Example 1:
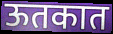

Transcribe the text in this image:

ऊतकात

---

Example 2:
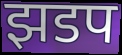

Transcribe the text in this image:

झडप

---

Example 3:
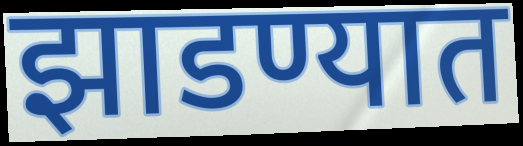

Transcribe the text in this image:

झाडण्यात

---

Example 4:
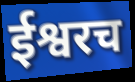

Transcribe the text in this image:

ईश्वरच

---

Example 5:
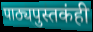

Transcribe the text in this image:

पाठ्यपुस्तकंही